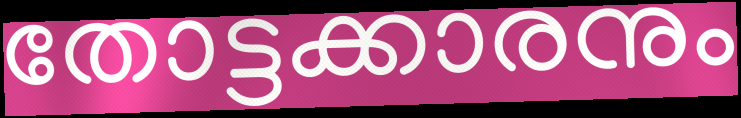
തോട്ടക്കാരനും